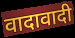
वादावादी